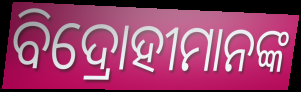
ବିଦ୍ରୋହୀମାନଙ୍କ